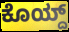
ಕೊಯ್ದ್